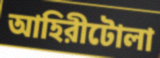
আহিরীটোলা